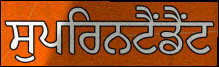
ਸੁਪਰਿਨਟੈਂਡੈਂਟ